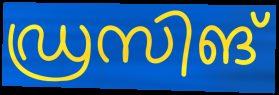
ഡ്രസിങ്